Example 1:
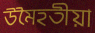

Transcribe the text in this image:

উমৈহতীয়া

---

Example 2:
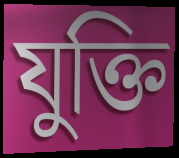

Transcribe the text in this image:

যুক্তি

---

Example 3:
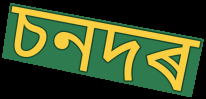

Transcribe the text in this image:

চনদৰ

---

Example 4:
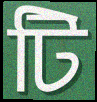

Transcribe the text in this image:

টি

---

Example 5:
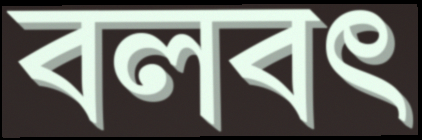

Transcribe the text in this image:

বলবৎ